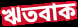
ঋতবাক